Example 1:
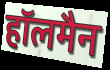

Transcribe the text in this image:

हॉलमैन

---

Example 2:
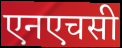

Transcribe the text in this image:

एनएचसी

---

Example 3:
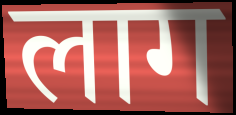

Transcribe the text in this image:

लाग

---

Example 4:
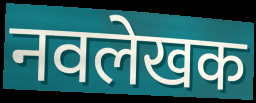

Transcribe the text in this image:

नवलेखक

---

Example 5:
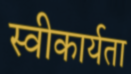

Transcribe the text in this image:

स्वीकार्यता